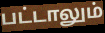
பட்டாலும்